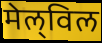
मेल्विल